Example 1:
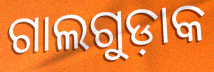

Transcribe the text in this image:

ଗାଲଗୁଡ଼ାକ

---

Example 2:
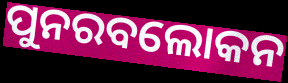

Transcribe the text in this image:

ପୁନରବଲୋକନ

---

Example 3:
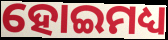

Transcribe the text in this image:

ହୋଇମଧ୍ୟ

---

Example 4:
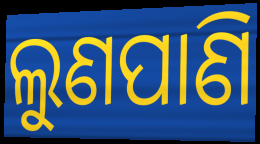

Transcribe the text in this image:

ଲୁଣପାଣି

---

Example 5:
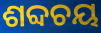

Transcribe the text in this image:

ଶବ୍ଦଚୟ